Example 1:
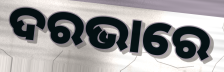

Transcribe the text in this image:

ଦରଭାରେ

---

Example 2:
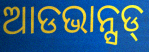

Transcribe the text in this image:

ଆଡଭାନ୍ସଡ୍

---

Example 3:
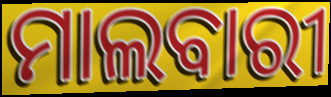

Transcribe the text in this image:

ମାଲବାରୀ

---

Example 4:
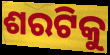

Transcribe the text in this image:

ଶରଟିକୁ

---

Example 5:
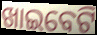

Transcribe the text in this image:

ଖାଇବେଟି